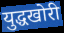
युद्धखोरी